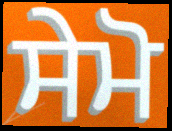
ਸੇਮੋ